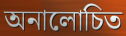
অনালোচিত